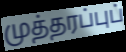
முத்தரப்புப்